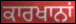
ਕਾਰਖਾਨਾਂ